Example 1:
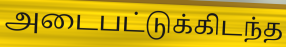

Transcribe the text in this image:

அடைபட்டுக்கிடந்த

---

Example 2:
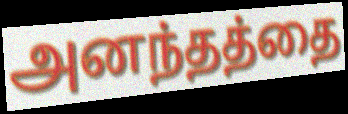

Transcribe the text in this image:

அனந்தத்தை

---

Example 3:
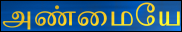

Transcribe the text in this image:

அண்மையே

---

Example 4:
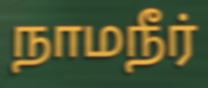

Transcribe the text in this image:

நாமநீர்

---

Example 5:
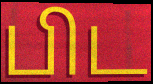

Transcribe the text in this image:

பிட